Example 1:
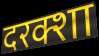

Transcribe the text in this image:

दरक्शा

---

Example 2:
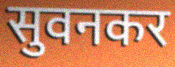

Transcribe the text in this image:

सुवनकर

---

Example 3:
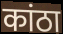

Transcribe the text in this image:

कांठा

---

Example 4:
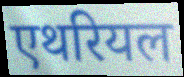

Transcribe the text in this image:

एथरियल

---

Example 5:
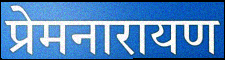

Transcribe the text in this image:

प्रेमनारायण